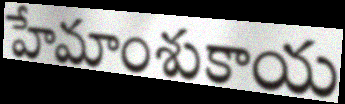
హేమాంశుకాయ